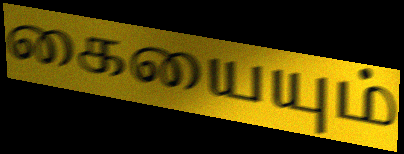
கையையும்